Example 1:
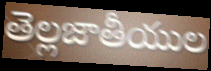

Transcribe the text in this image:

తెల్లజాతీయుల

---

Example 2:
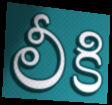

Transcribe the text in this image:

లీకి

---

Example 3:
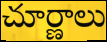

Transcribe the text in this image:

చూర్ణాలు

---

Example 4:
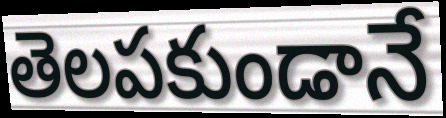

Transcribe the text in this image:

తెలపకుండానే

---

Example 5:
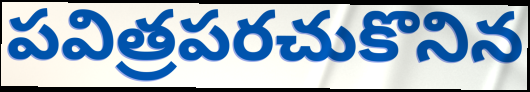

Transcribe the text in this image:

పవిత్రపరచుకొనిన